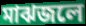
মাঝজলে